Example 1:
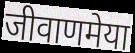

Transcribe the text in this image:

जीवाणमेया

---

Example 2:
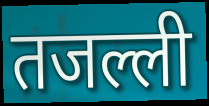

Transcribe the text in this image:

तजल्ली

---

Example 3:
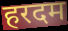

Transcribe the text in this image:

हरदम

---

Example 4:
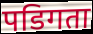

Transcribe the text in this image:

पडिगता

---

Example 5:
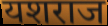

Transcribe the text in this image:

यशराज